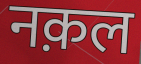
नक़ल